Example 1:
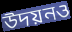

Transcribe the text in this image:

উদয়নও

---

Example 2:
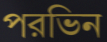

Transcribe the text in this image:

পরভিন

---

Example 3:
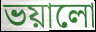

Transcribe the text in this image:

ভয়ালো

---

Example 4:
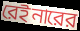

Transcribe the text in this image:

রেইনারের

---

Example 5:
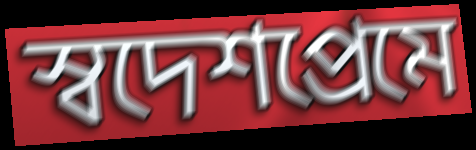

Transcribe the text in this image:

স্বদেশপ্রেমে